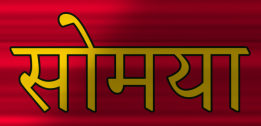
सोमया